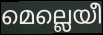
മെല്ലെയീ